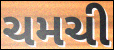
ચમચી